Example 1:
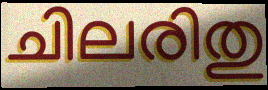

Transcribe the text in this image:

ചിലരിതു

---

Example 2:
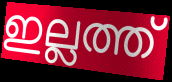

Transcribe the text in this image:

ഇല്ലത്ത്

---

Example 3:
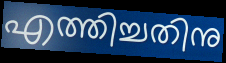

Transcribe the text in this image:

എത്തിച്ചതിനു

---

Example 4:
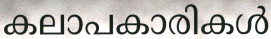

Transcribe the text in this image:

കലാപകാരികൾ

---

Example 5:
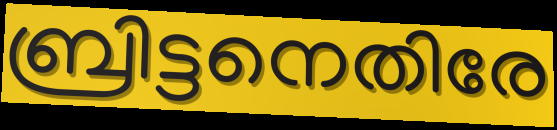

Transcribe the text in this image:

ബ്രിട്ടനെതിരേ